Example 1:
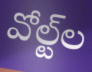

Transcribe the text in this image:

వోల్ట్‌ల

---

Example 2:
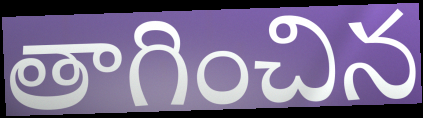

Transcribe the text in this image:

తాగించిన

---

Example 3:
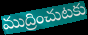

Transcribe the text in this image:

ముద్రించుటకు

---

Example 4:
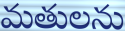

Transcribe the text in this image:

మతులను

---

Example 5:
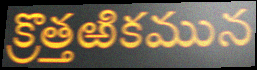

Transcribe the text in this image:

క్రొత్తఱికమున